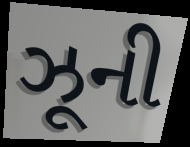
ઝૂની